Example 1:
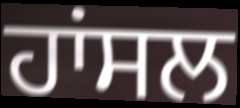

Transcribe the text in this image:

ਹਾਂਸਲ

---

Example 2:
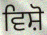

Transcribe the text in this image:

ਵਿਸ਼ੋ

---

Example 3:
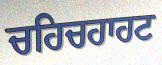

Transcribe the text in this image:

ਚਹਿਚਹਾਹਟ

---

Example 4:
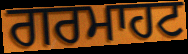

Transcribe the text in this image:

ਗਰਮਾਹਟ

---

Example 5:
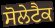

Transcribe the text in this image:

ਸੋਲੇਟੈਕ